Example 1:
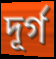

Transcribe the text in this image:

দূৰ্গ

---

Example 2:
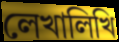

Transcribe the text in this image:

লেখালিখি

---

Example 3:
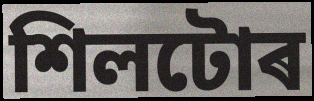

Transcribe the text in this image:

শিলটোৰ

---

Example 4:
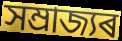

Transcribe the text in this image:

সম্ৰাজ্যৰ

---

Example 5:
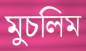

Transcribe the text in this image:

মুচলিম